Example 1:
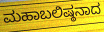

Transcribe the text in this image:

ಮಹಾಬಲಿಷ್ಠನಾದ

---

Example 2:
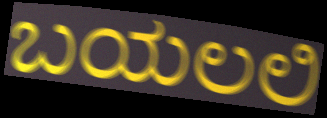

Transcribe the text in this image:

ಬಯಲಲಿ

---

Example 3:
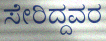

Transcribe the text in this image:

ಸೇರಿದ್ದವರ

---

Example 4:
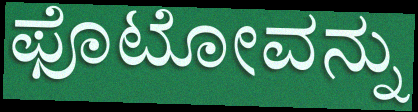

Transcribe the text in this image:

ಫೊಟೋವನ್ನು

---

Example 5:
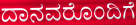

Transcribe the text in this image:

ದಾನವರೊಂದಿಗೆ